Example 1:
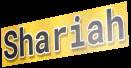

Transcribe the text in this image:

Shariah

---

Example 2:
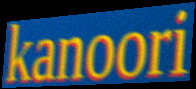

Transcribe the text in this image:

kanoori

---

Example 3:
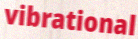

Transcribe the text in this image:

vibrational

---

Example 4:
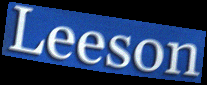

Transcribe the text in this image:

Leeson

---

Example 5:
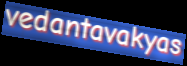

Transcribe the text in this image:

vedantavakyas